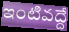
ఇంటివద్దే